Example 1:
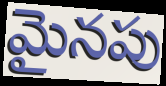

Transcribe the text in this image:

మైనపు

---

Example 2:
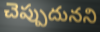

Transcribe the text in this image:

చెప్పుదునని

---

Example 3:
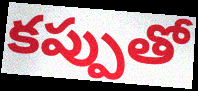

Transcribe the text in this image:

కప్పుతో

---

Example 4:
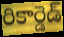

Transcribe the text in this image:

రికార్డెడ్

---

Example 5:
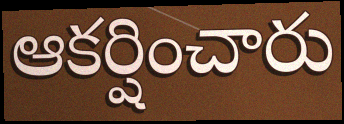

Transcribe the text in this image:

ఆకర్షించారు